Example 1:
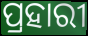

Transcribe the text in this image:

ପ୍ରହାରୀ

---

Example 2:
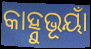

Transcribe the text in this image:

କାହ୍ନୁଭୂୟାଁ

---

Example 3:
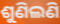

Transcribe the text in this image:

ଶୁଣିଲଣି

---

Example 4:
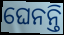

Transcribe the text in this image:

ଘେନନ୍ତି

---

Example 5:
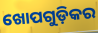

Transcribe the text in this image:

ଖୋପଗୁଡ଼ିକର